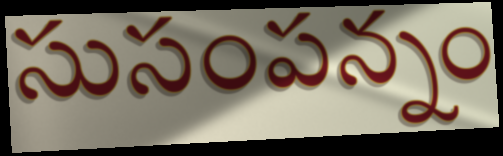
సుసంపన్నం